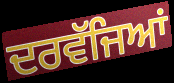
ਦਰਵੱਜਿਆਂ